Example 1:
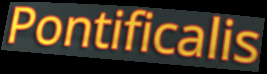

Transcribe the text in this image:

Pontificalis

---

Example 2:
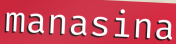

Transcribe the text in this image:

manasina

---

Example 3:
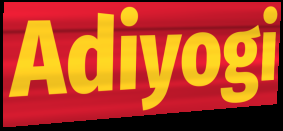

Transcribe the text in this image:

Adiyogi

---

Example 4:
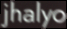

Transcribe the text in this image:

jhalyo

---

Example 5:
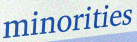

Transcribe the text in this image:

minorities